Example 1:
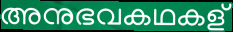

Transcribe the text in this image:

അനുഭവകഥകള്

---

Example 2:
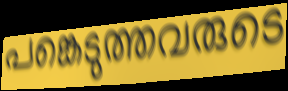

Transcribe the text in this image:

പങ്കെടുത്തവരുടെ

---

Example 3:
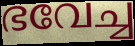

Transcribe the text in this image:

ഭവേച്ച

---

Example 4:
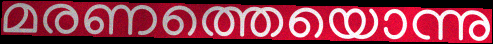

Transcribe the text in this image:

മരണത്തെയൊന്നു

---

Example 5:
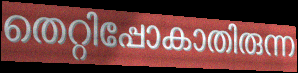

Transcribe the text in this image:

തെറ്റിപ്പോകാതിരുന്ന